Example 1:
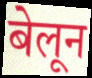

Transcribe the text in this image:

बेलून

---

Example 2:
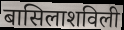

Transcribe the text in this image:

बासिलाशविली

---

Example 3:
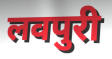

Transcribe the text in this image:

लवपुरी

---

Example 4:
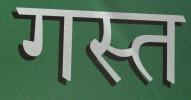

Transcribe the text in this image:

गस्त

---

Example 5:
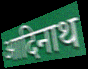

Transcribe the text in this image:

आदिनाथ